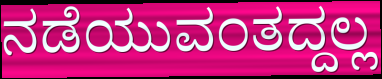
ನಡೆಯುವಂತದ್ದಲ್ಲ